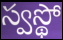
స్వస్థో